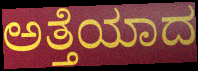
ಅತ್ತೆಯಾದ